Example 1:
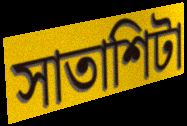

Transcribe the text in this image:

সাতাশিটা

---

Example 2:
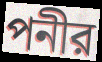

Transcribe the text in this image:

পনীর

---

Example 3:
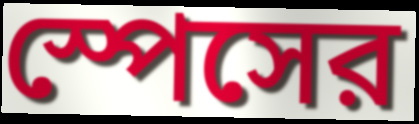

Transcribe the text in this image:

স্পেসের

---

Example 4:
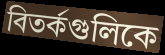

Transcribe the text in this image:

বিতর্কগুলিকে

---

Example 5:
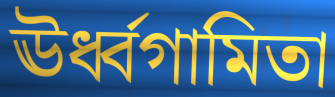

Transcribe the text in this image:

ঊর্ধ্বগামিতা